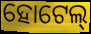
ହୋଟେଲ୍